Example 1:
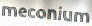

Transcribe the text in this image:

meconium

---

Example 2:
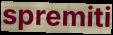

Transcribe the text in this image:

spremiti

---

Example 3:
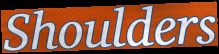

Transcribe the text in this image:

Shoulders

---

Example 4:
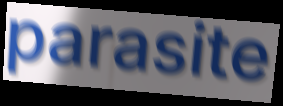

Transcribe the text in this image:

parasite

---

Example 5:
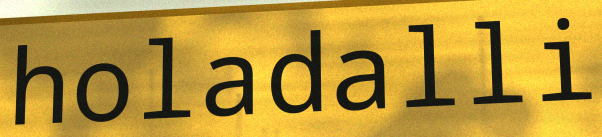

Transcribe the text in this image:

holadalli